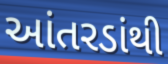
આંતરડાંથી